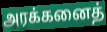
அரக்கனைத்